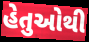
હેતુઓથી